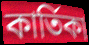
কাৰ্তিকা